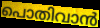
പൊതിവാൻ